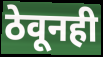
ठेवूनही